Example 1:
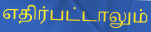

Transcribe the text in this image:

எதிர்பட்டாலும்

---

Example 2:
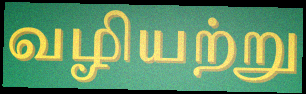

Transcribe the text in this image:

வழியற்று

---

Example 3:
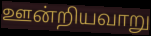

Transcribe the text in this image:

ஊன்றியவாறு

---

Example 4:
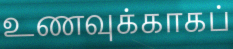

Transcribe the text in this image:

உணவுக்காகப்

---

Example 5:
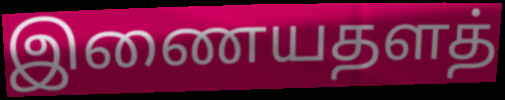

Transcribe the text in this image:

இணையதளத்